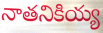
నాతనికియ్య